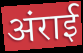
अंराई